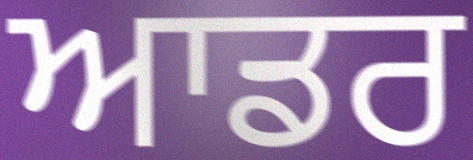
ਆਡਰ